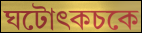
ঘটোৎকচকে